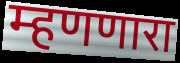
म्हणणारा